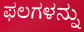
ಫಲಗಳನ್ನು